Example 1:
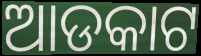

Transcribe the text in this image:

ଆଡକାଟ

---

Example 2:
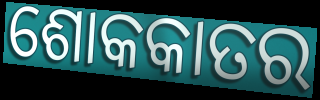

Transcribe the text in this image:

ଶୋକକାତର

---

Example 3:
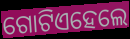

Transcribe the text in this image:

ଗୋଟିଏହେଲେ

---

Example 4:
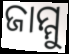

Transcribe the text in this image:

ଜାମ୍ମୁ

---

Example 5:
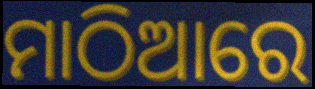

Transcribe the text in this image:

ମାଠିଆରେ